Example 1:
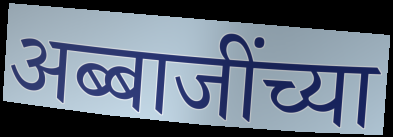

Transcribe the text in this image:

अब्बाजींच्या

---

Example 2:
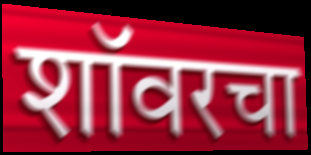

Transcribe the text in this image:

शॉवरचा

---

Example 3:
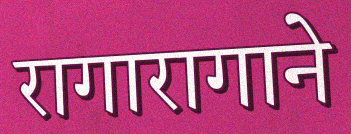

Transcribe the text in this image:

रागारागाने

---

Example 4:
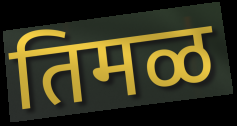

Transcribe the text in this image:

तिमळ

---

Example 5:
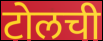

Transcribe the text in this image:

टोलची